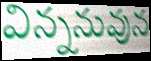
విన్ననువున